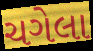
ચગેલા